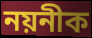
নয়নীক